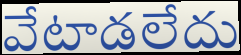
వేటాడలేదు